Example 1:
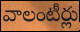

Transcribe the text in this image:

వాలంటీర్లు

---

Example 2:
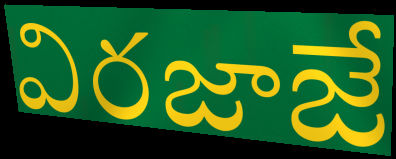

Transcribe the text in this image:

విరజాజే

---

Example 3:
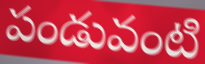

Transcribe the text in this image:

పండువంటి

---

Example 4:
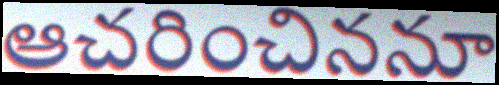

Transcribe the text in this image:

ఆచరించిననూ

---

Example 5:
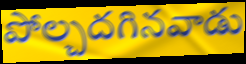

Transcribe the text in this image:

పోల్చదగినవాడు